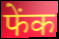
फेंक